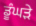
ਡੂੰਘੜੇ